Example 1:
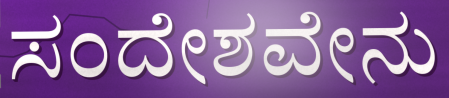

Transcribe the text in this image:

ಸಂದೇಶವೇನು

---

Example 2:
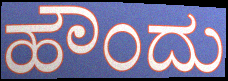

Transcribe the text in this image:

ಹೌಂದು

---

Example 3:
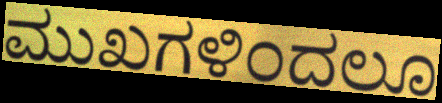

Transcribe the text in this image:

ಮುಖಗಳಿಂದಲೂ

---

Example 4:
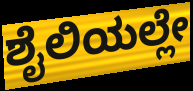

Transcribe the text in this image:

ಶೈಲಿಯಲ್ಲೇ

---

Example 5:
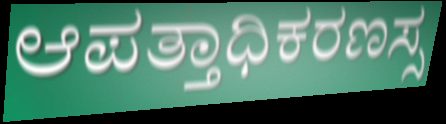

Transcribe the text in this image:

ಆಪತ್ತಾಧಿಕರಣಸ್ಸ